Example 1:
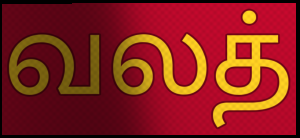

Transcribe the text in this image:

வலத்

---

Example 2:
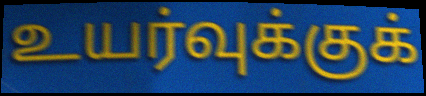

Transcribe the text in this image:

உயர்வுக்குக்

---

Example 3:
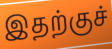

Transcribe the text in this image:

இதற்குச்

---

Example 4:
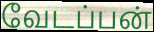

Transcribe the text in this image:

வேடப்பன்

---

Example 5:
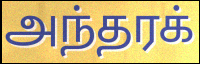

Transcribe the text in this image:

அந்தரக்